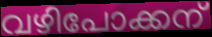
വഴിപോക്കന്